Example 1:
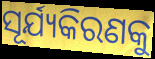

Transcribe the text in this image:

ସୂର୍ଯ୍ୟକିରଣକୁ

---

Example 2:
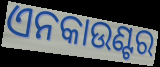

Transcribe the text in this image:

ଏନକାଉଣ୍ଟର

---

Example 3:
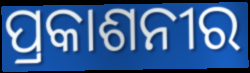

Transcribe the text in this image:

ପ୍ରକାଶନୀର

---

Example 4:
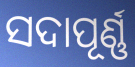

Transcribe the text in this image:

ସଦାପୂର୍ଣ୍ଣ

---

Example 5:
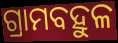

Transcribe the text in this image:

ଗ୍ରାମବହୁଳ